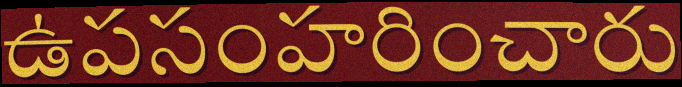
ఉపసంహరించారు